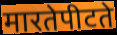
मारतेपीटते